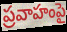
ప్రవాహంపై